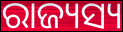
ରାଜ୍ୟସ୍ୟ